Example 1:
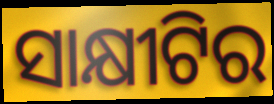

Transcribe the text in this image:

ସାକ୍ଷୀଟିର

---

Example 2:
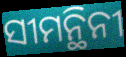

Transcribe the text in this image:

ସୀମନ୍ଥିନୀ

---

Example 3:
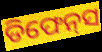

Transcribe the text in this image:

ଡିଫେନ୍‌ସ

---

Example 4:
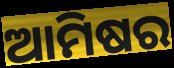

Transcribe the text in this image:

ଆମିଷର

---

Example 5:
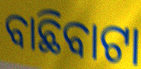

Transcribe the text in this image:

ବାଛିବାଟା